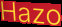
Hazo